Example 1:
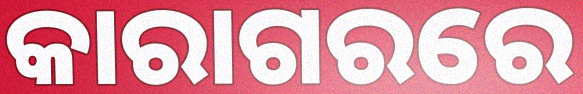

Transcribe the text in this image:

କାରାଗରରେ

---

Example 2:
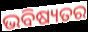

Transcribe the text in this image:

ଭବିଷ୍ୟତର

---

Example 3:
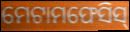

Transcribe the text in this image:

ମେଟାମଫେସିସ୍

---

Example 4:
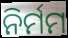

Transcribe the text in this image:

ନିର୍ମମ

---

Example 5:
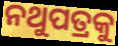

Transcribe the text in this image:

ନଥୁପତ୍ରକୁ